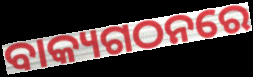
ବାକ୍ୟଗଠନରେ